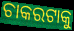
ଚାକରଟାକୁ